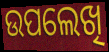
ଉପଲେଖି